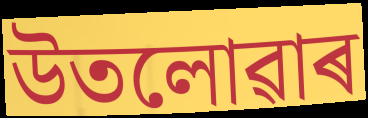
উতলোৱাৰ